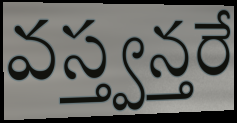
వస్త్వన్తరే